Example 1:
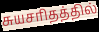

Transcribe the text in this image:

சுயசரிதத்தில்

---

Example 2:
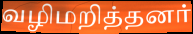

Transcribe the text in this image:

வழிமறித்தனர்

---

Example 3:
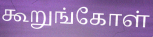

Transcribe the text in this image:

கூறுங்கோள்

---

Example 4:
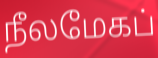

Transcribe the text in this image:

நீலமேகப்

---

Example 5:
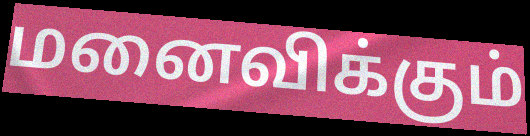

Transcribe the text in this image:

மனைவிக்கும்